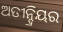
ଅତୀନ୍ଦ୍ରିୟର